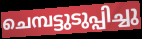
ചെമ്പട്ടുടുപ്പിച്ചു